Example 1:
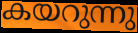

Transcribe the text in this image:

കയറുന്നു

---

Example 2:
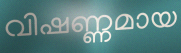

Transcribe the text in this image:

വിഷണ്ണമായ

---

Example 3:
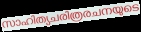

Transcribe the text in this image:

സാഹിത്യചരിത്രരചനയുടെ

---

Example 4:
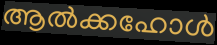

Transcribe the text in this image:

ആൽക്കഹോൾ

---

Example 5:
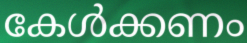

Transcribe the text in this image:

കേൾക്കണം